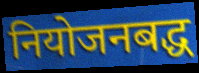
नियोजनबद्ध